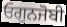
ਓਗੁਨਜੋਬੀ